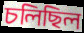
চলিছিল